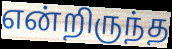
என்றிருந்த